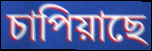
চাপিয়াছে